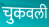
चुकवली